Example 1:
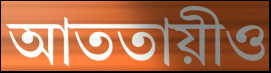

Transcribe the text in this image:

আততায়ীও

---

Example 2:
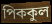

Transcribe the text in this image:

পিককুল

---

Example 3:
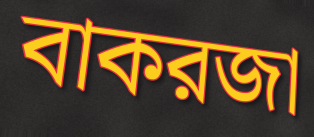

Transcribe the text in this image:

বাকরজা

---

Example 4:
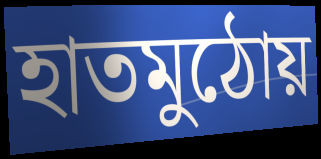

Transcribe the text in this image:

হাতমুঠোয়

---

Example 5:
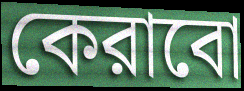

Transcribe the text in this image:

কেরাবো